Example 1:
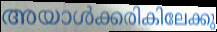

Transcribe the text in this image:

അയാൾക്കരികിലേക്കു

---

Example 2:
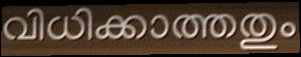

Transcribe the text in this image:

വിധിക്കാത്തതും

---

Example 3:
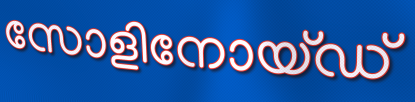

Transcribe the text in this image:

സോളിനോയ്ഡ്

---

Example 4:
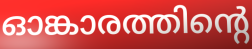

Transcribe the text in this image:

ഓങ്കാരത്തിന്റെ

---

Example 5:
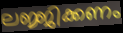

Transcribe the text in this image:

ലജ്ജിക്കണം